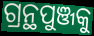
ଗ୍ରନ୍ଥପୁଞ୍ଜକୁ